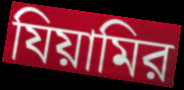
যিয়ামির